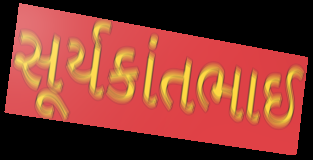
સૂર્યકાંતભાઈ